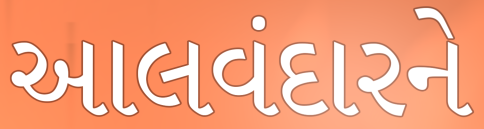
આલવંદારને